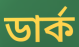
ডার্ক